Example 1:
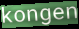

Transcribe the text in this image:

kongen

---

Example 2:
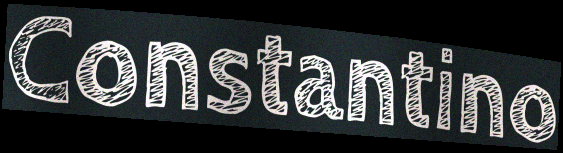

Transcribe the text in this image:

Constantino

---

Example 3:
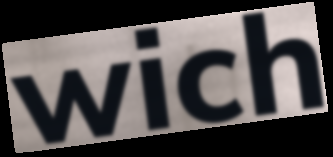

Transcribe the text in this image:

wich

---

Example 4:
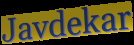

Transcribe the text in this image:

Javdekar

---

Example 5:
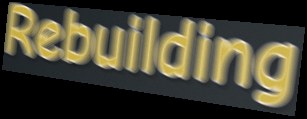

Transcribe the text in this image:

Rebuilding